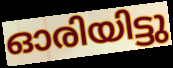
ഓരിയിട്ടു